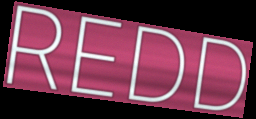
REDD